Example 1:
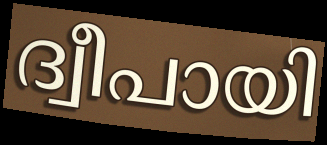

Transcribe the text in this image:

ദ്വീപായി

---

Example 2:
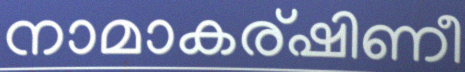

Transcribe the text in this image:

നാമാകര്ഷിണീ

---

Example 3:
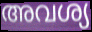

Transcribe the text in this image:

അവശ്യ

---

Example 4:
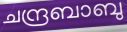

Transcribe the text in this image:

ചന്ദ്രബാബു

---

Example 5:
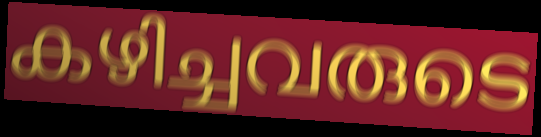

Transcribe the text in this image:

കഴിച്ചവരുടെ